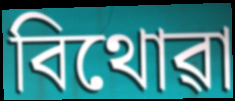
বিথোৱা